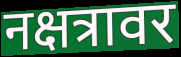
नक्षत्रावर